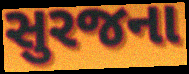
સુરજના